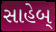
સાહેબ્